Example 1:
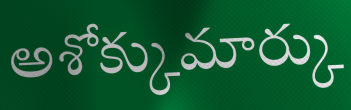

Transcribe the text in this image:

అశోక్కుమార్కు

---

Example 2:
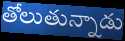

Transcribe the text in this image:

తోలుతున్నాడు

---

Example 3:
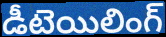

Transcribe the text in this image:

డీటెయిలింగ్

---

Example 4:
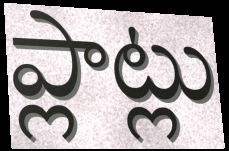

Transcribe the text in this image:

ప్లాట్లు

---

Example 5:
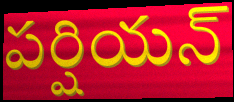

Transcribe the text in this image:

పర్షియన్